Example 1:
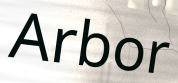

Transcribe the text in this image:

Arbor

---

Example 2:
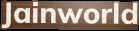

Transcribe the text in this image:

Jainworld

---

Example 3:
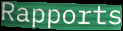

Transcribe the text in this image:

Rapports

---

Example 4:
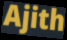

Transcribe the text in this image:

Ajith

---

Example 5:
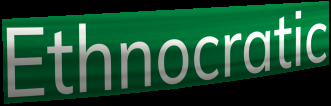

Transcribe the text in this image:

Ethnocratic